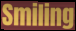
Smiling